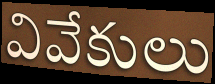
వివేకులు